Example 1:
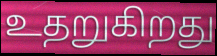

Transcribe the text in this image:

உதறுகிறது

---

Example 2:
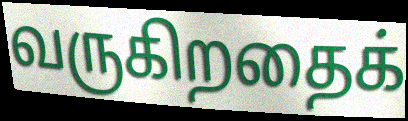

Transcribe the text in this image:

வருகிறதைக்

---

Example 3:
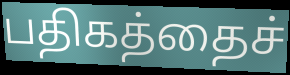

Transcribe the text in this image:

பதிகத்தைச்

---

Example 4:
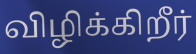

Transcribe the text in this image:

விழிக்கிறீர்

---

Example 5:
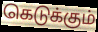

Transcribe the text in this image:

கெடுக்கும்